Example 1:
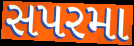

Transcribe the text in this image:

સપરમા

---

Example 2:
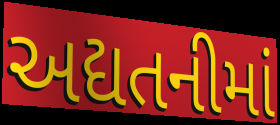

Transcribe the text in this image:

અદ્યતનીમાં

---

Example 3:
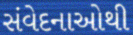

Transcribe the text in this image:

સંવેદનાઓથી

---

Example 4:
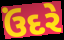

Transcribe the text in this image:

ઉંદરે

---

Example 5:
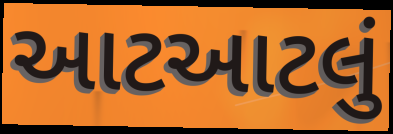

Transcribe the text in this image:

આટઆટલું